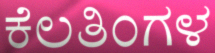
ಕೆಲತಿಂಗಳ